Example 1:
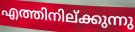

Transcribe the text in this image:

എത്തിനില്ക്കുന്നു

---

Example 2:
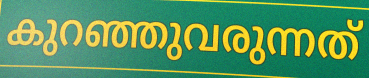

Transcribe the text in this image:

കുറഞ്ഞുവരുന്നത്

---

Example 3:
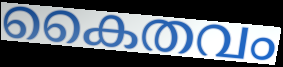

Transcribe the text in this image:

കൈതവം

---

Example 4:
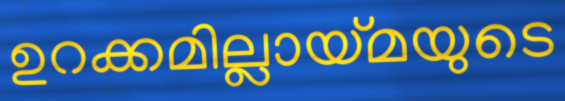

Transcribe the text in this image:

ഉറക്കമില്ലായ്മയുടെ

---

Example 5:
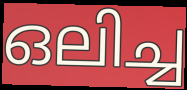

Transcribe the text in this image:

ഒലിച്ച